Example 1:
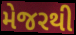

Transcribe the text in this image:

મેજરથી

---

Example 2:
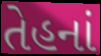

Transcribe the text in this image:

તેહનાં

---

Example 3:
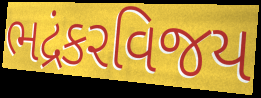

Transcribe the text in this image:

ભદ્રંકરવિજય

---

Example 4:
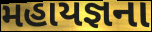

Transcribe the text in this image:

મહાયજ્ઞના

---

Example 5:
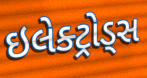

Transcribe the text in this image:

ઇલેક્ટ્રોડ્સ